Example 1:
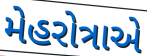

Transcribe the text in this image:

મેહરોત્રાએ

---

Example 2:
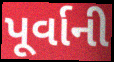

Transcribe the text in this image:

પૂર્વાની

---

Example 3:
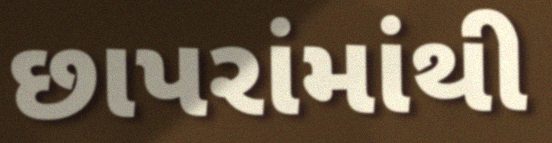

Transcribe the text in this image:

છાપરાંમાંથી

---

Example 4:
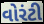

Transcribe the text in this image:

વોરંટી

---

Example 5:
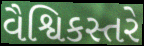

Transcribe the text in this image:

વૈશ્વિકસ્તરે